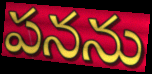
పనను